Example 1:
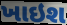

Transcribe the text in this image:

ખાઇશ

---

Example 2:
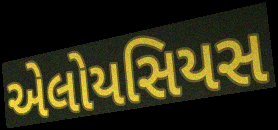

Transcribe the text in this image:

એલોયસિયસ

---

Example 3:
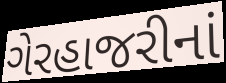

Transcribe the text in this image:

ગેરહાજરીનાં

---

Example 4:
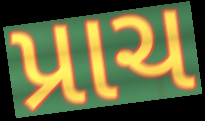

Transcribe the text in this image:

પ્રાચ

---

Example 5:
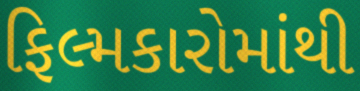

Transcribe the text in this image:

ફિલ્મકારોમાંથી